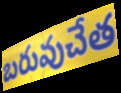
బరువుచేత